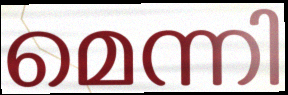
മെന്നി